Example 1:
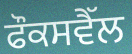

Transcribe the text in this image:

ਫੌਕਸਵੈੱਲ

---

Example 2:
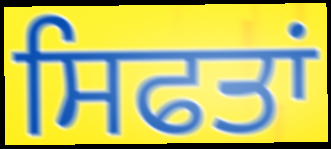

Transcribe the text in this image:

ਸਿਫਤਾਂ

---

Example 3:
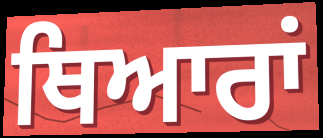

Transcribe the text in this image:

ਥਿਆਰਾਂ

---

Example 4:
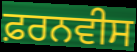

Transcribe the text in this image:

ਫ਼ਰਨਵੀਸ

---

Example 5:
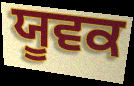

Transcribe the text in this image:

ਯੂਵਕ